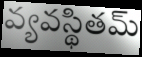
వ్యవస్థితమ్